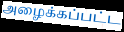
அழைக்கப்பட்ட